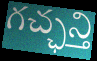
గచ్ఛన్తి